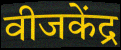
वीजकेंद्र